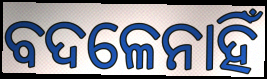
ବଦଳେନାହିଁ